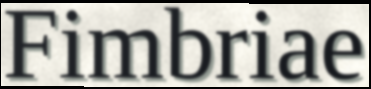
Fimbriae